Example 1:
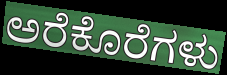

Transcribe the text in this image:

ಅರೆಕೊರೆಗಳು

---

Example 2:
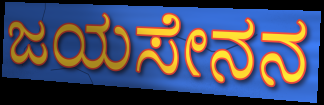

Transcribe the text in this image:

ಜಯಸೇನನ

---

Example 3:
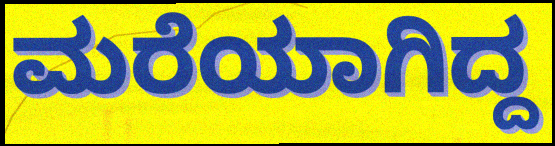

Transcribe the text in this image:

ಮರೆಯಾಗಿದ್ದ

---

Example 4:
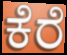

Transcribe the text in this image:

ಕೆರೆ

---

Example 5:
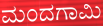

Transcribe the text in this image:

ಮಂದಗಾಮಿ